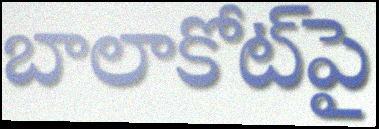
బాలాకోట్‌పై